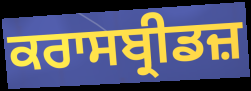
ਕਰਾਸਬ੍ਰੀਡਜ਼